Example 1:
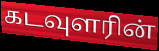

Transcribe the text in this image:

கடவுளரின்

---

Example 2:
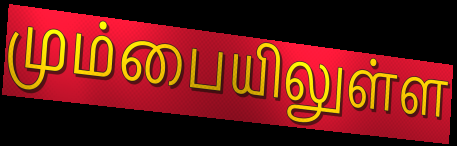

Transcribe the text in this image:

மும்பையிலுள்ள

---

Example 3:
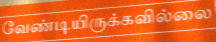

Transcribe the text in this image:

வேண்டியிருக்கவில்லை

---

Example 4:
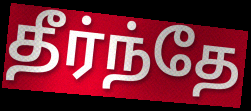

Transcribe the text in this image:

தீர்ந்தே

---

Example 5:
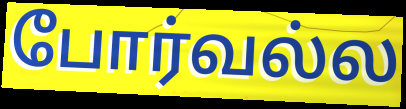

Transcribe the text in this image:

போர்வல்ல